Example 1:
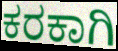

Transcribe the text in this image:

ಕರಕಾಗಿ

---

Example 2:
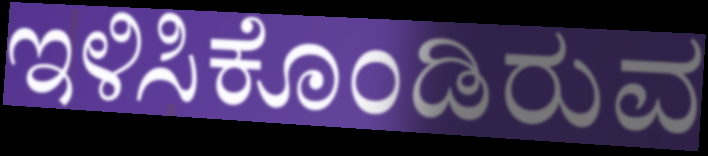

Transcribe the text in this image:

ಇಳಿಸಿಕೊಂಡಿರುವ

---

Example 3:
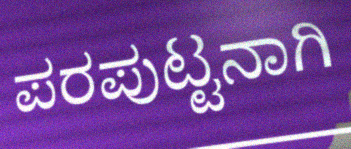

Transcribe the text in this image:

ಪರಪುಟ್ಟನಾಗಿ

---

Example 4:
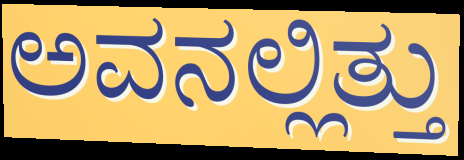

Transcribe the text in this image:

ಅವನಲ್ಲಿತ್ತು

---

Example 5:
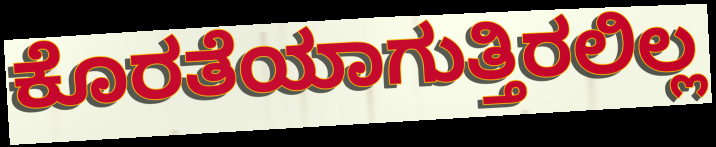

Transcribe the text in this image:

ಕೊರತೆಯಾಗುತ್ತಿರಲಿಲ್ಲ